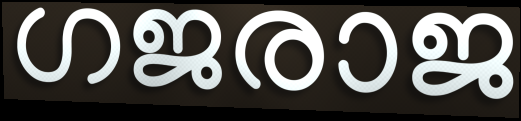
ഗജരാജ